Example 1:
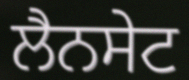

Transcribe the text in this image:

ਲੈਨਸੇਟ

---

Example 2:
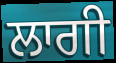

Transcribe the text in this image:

ਲਾਗੀ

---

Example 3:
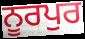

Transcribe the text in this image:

ਨੂਰਪੁਰ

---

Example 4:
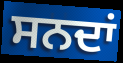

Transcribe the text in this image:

ਸਨਦਾਂ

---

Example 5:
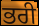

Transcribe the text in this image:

ਭਰੀ